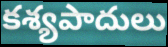
కశ్యపాదులు